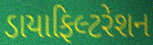
ડાયાફિલ્ટરેશન